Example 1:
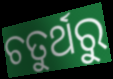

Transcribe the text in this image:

ଚତୁର୍ଥରୁ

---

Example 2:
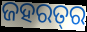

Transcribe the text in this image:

ଜହରତ୍‍ର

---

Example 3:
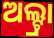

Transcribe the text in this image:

ଅଲ୍ଟ୍ରା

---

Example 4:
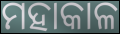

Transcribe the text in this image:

ମହାକାଳ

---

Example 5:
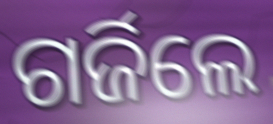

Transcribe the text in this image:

ଗର୍ଜିଲେ